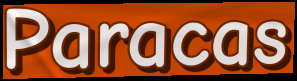
Paracas